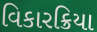
વિકારક્રિયા